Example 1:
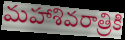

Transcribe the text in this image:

మహాశివరాత్రికి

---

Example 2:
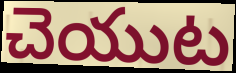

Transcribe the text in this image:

చెయుట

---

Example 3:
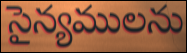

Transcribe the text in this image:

సైన్యములను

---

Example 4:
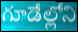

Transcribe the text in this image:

గూడేల్లోని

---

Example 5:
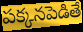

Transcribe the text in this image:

పక్కనపెడితే